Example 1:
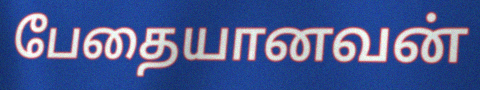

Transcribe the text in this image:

பேதையானவன்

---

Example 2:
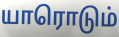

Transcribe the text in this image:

யாரொடும்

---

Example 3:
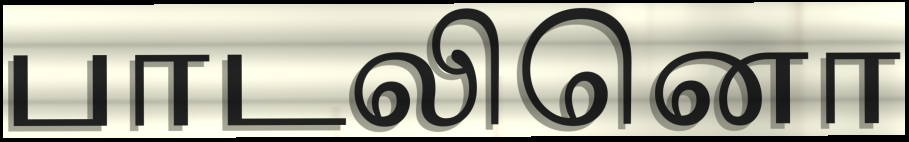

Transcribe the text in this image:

பாடலினொ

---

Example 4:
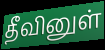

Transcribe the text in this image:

தீவினுள்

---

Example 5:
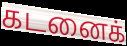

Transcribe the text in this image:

கடனைக்